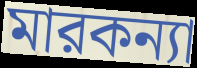
মারকন্যা